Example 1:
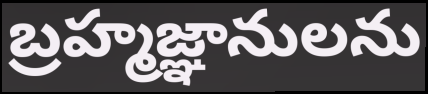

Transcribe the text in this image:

బ్రహ్మజ్ఞానులను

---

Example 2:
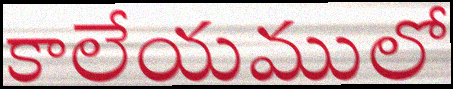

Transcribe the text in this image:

కాలేయములో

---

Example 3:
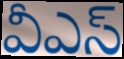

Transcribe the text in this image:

వీఎస్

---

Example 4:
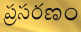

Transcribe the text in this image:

ప్రసరణం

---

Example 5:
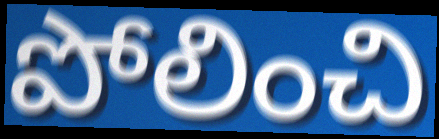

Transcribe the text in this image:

పోలించి